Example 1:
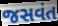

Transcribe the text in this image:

જસવંત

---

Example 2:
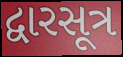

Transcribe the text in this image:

દ્વારસૂત્ર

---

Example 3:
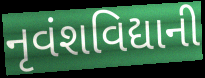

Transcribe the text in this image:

નૃવંશવિદ્યાની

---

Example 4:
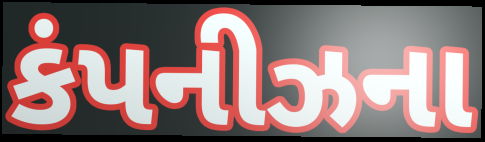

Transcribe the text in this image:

કંપનીઝના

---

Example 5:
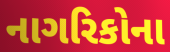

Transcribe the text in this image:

નાગરિકોના